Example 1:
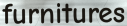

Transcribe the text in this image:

furnitures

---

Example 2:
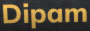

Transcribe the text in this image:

Dipam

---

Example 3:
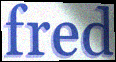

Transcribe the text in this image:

fred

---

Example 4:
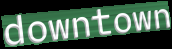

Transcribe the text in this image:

downtown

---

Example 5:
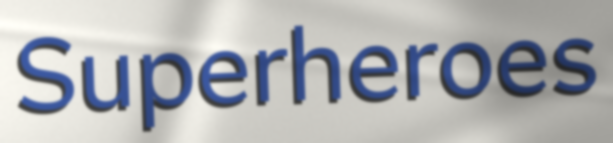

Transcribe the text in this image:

Superheroes